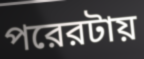
পরেরটায়